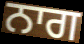
ਨਾਗ